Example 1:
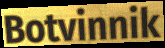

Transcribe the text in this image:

Botvinnik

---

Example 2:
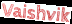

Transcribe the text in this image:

Vaishvik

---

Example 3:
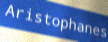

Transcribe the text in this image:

Aristophanes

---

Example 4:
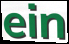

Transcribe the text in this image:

ein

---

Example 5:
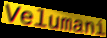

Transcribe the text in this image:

Velumani